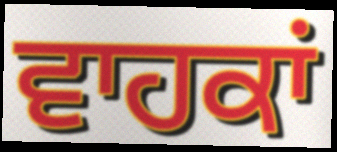
ਵਾਹਕਾਂ